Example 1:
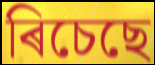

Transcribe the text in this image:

ৰিচেছে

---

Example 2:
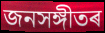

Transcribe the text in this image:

জনসঙ্গীতৰ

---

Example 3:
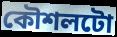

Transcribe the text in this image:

কৌশলটো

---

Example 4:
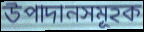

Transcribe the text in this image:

উপাদানসমূহক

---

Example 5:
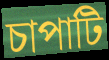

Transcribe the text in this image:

চাপাটি